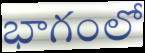
భాగంలో